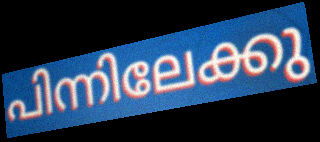
പിന്നിലേക്കു